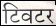
टिवटर